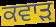
ਕਵਾੜ